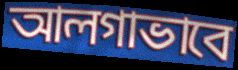
আলগাভাবে